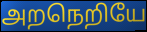
அறநெறியே